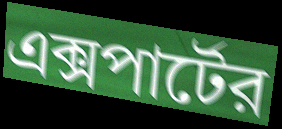
এক্সপার্টের